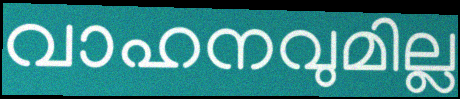
വാഹനവുമില്ല